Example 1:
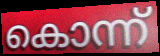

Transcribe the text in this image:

കൊന്ന്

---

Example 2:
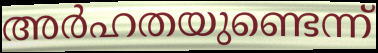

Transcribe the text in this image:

അർഹതയുണ്ടെന്ന്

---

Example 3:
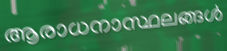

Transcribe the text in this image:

ആരാധനാസ്ഥലങ്ങൾ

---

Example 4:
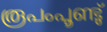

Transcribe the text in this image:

രൂപംപൂണ്ടു്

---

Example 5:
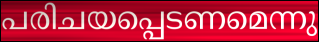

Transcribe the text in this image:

പരിചയപ്പെടണമെന്നു